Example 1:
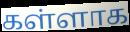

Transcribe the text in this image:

கள்ளாக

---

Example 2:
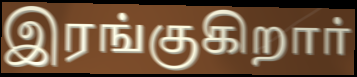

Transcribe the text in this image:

இரங்குகிறார்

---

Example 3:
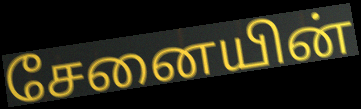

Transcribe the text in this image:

சேனையின்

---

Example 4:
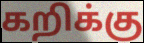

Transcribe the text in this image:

கறிக்கு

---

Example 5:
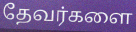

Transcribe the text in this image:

தேவர்களை